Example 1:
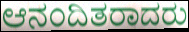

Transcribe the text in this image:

ಆನಂದಿತರಾದರು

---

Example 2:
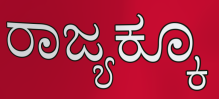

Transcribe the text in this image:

ರಾಜ್ಯಕ್ಕೂ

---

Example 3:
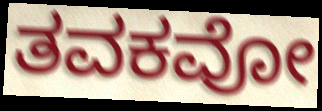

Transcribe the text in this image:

ತವಕವೋ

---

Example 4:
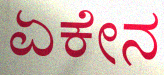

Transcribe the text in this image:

ಏಕೇನ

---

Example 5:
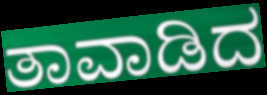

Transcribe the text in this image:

ತಾವಾಡಿದ